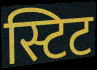
स्टिट